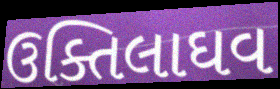
ઉક્તિલાઘવ